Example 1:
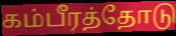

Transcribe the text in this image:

கம்பீரத்தோடு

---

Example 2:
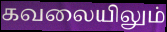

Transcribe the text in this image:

கவலையிலும்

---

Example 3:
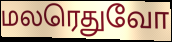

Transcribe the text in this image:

மலரெதுவோ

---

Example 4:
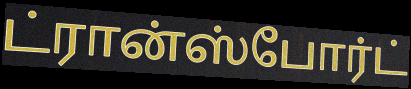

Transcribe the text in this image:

ட்ரான்ஸ்போர்ட்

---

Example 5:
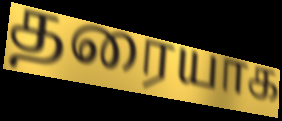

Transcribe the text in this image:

தரையாக